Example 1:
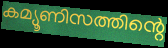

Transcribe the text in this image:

കമ്യൂണിസത്തിന്റെ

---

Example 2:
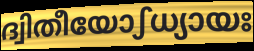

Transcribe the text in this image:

ദ്വിതീയോഽധ്യായഃ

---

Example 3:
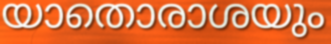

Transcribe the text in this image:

യാതൊരാശയും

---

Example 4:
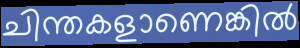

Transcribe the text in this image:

ചിന്തകളാണെങ്കിൽ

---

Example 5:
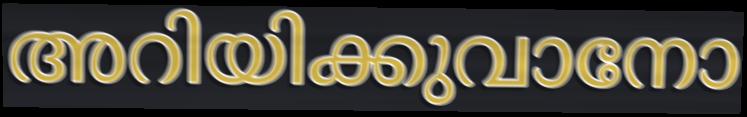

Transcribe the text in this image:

അറിയിക്കുവാനോ